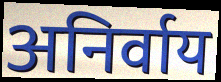
अनिर्वाय